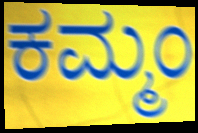
ಕಮ್ಮಂ